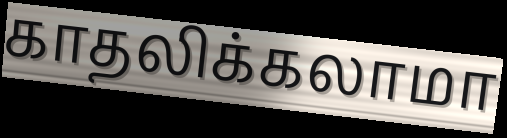
காதலிக்கலாமா